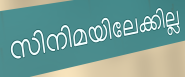
സിനിമയിലേക്കില്ല